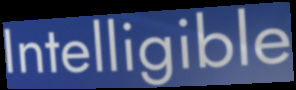
Intelligible